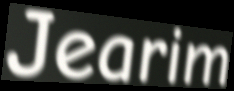
Jearim